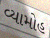
વ્યામોહ